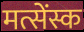
मत्सेंस्क